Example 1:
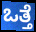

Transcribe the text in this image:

ಒತ್ತೆ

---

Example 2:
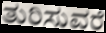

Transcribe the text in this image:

ತುರಿಸುವರೆ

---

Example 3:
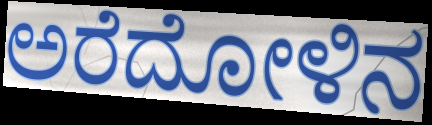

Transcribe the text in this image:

ಅರೆದೋಳಿನ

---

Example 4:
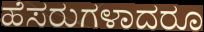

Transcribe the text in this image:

ಹೆಸರುಗಳಾದರೂ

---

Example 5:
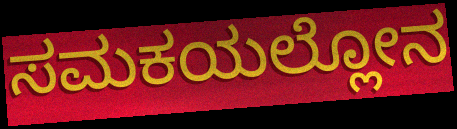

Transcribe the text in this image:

ಸಮಕಯಲ್ಲೋನ